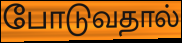
போடுவதால்